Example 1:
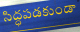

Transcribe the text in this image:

సిద్ధపడకుండా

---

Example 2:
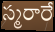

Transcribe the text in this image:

స్మరారే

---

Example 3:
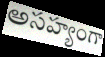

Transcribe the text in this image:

అసహ్యంగా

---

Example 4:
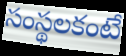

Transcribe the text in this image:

సంస్థలకంటే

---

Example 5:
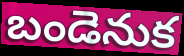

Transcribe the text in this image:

బండెనుక